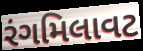
રંગમિલાવટ